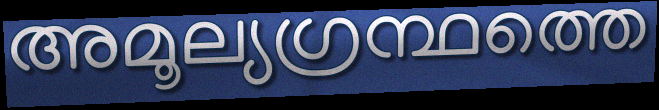
അമൂല്യഗ്രന്ഥത്തെ